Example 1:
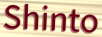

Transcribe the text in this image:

Shinto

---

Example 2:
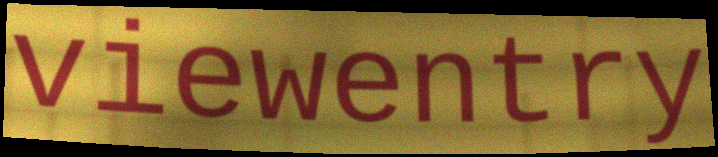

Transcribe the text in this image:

viewentry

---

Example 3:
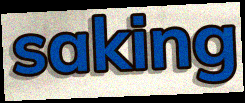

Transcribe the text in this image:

saking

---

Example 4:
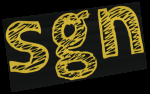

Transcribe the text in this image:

sgn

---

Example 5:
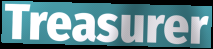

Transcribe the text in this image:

Treasurer